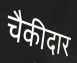
चैकीदार